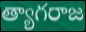
త్యాగరాజ